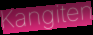
Kangiten